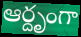
ఆర్దృంగా